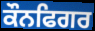
ਕੌਨਫਿਗਰ